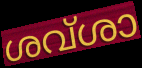
ശവ്ശാ